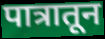
पात्रातून